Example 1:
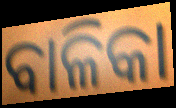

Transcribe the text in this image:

ବାଳିକା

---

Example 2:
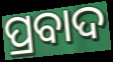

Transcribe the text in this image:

ପ୍ରବାଦ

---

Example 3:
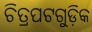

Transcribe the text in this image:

ଚିତ୍ରପଟଗୁଡ଼ିକ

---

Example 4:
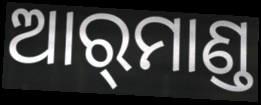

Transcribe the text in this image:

ଆର୍‌ମାଣ୍ଡ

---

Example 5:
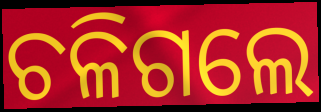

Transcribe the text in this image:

ଚଳିଗଲେ